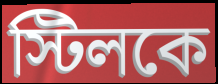
স্টিলকে